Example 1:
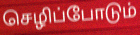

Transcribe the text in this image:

செழிப்போடும்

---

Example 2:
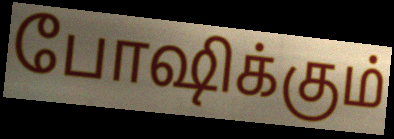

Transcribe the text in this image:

போஷிக்கும்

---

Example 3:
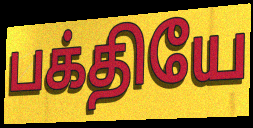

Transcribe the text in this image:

பக்தியே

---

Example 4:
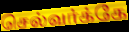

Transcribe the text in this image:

செல்வர்க்கே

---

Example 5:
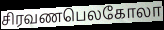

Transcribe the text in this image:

சிரவணபெலகோலா